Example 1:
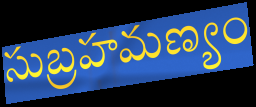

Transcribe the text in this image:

సుబ్రహమణ్యం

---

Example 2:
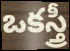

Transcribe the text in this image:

ఒకస్త్రీ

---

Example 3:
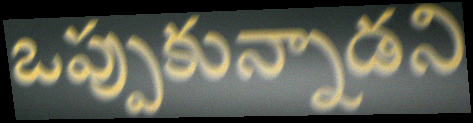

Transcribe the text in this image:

ఒప్పుకున్నాడని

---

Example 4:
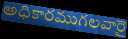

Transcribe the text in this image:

అధికారముగలవారై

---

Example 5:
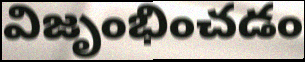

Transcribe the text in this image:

విజృంభించడం